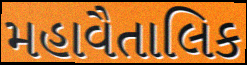
મહાવૈતાલિક